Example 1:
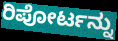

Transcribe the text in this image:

ರಿಪೋರ್ಟನ್ನು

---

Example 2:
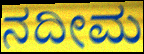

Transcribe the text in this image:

ನದೀಮ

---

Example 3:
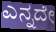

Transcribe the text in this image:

ಎನ್ನದೇ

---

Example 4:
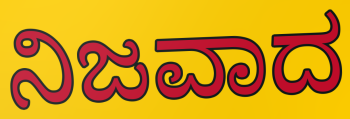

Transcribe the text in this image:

ನಿಜವಾದ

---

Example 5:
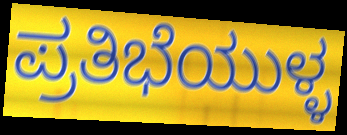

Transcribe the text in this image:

ಪ್ರತಿಭೆಯುಳ್ಳ